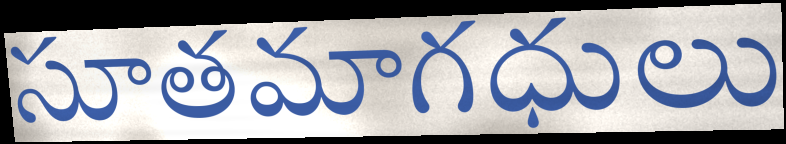
సూతమాగధులు